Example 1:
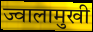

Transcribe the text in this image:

ज्‍वालामुखी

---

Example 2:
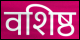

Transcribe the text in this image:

वशिष्ठ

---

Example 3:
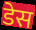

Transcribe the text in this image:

डेस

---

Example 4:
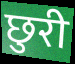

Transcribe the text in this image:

छुरी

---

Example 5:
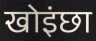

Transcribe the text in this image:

खोइंछा